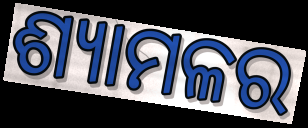
ଶ୍ୟାମଳର